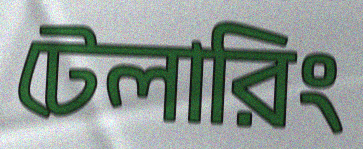
টেলারিং